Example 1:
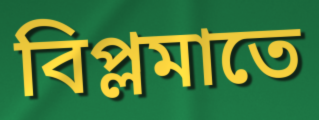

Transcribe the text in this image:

বিপ্লমাতে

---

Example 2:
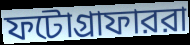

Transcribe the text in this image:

ফটোগ্রাফাররা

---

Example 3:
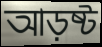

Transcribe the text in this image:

আড়ষ্ট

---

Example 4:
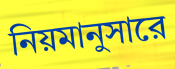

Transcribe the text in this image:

নিয়মানুসারে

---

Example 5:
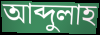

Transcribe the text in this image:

আব্দুলাহ